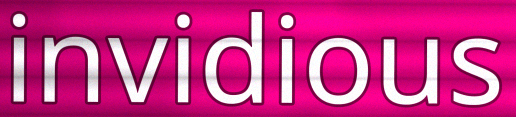
invidious